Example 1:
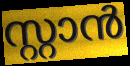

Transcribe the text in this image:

സ്റ്റാൻ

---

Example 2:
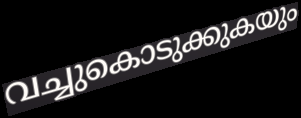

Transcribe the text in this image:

വച്ചുകൊടുക്കുകയും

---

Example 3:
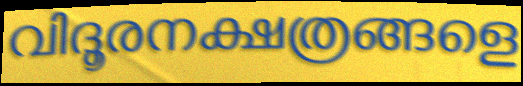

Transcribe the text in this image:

വിദൂരനക്ഷത്രങ്ങളെ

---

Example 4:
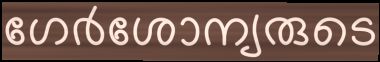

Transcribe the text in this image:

ഗേർശോന്യരുടെ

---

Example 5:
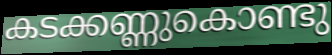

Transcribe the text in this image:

കടക്കണ്ണുകൊണ്ടു